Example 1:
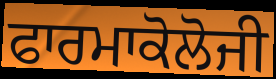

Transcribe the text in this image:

ਫਾਰਮਾਕੋਲੋਜੀ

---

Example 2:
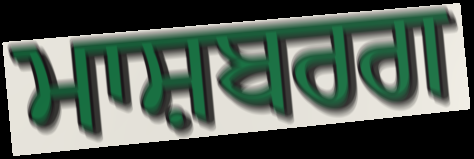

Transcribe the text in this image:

ਮਾਸ਼ਬਰਗ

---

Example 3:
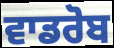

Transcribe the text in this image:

ਵਾਡਰੋਬ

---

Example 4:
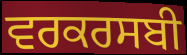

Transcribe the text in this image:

ਵਰਕਰਸਬੀ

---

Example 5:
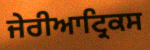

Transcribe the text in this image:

ਜੇਰੀਆਟ੍ਰਿਕਸ